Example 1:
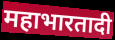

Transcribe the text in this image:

महाभारतादी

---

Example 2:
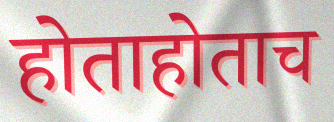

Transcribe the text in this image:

होताहोताच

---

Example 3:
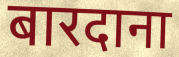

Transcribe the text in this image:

बारदाना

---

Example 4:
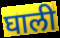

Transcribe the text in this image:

घाली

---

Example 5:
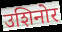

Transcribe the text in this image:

उशिनोर